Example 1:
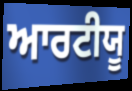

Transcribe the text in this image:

ਆਰਟੀਯੂ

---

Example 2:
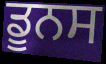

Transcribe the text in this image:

ਡੂਨਸ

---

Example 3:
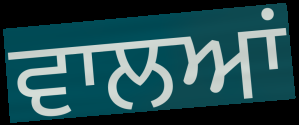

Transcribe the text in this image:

ਵਾਲਆਂ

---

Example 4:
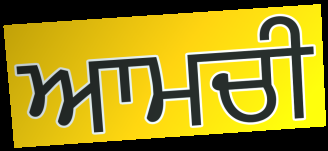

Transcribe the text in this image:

ਆਮਚੀ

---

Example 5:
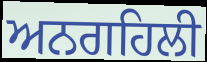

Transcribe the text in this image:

ਅਨਗਹਿਲੀ